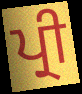
ਪ੍ਰੀ